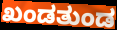
ಖಂಡತುಂಡ